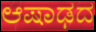
ಆಷಾಢದ